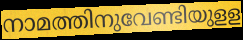
നാമത്തിനുവേണ്ടിയുളള